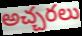
అచ్చరలు